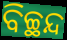
ବିଚ୍ଛନ୍ଦ